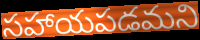
సహాయపడమని